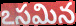
ఽసమిన